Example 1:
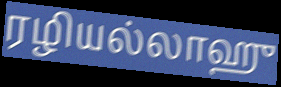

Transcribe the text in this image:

ரழியல்லாஹு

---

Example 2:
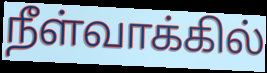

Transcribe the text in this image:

நீள்வாக்கில்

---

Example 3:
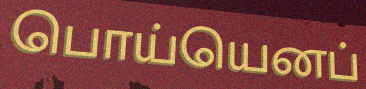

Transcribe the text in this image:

பொய்யெனப்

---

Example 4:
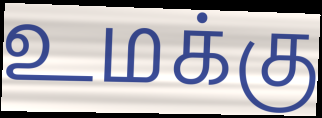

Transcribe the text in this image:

உமக்கு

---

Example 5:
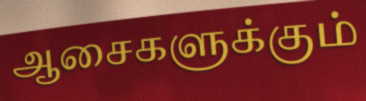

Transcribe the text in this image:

ஆசைகளுக்கும்